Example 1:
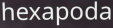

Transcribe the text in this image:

hexapoda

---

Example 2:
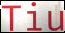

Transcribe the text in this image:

Tiu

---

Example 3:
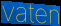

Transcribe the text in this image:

vaten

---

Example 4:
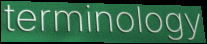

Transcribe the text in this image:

terminology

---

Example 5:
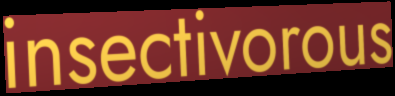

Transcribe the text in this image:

insectivorous